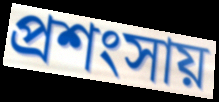
প্রশংসায়